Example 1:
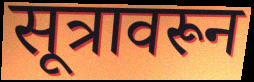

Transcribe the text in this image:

सूत्रावरून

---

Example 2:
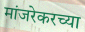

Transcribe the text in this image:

मांजरेकरच्या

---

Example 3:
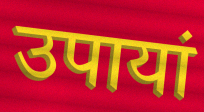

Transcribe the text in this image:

उपायां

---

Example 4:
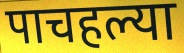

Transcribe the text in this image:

पाचहल्या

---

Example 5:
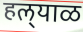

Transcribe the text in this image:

हल्याळ